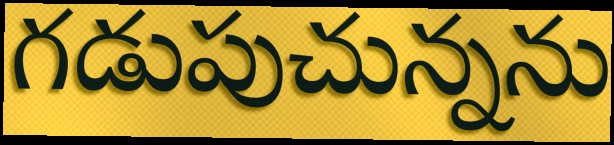
గడుపుచున్నను